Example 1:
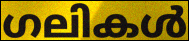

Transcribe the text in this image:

ഗലികൾ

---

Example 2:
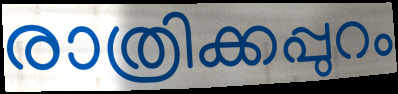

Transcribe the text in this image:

രാത്രിക്കപ്പുറം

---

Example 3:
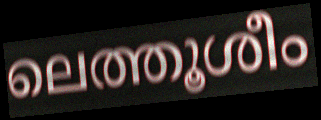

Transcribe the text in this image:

ലെത്തൂശീം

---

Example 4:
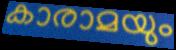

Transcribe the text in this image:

കാരാമയും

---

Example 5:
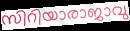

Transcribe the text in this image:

സിറിയാരാജാവു